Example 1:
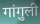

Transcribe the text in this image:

गांगुली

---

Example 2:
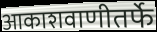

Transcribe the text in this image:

आकाशवाणीतर्फे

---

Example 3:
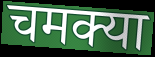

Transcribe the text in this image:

चमक्या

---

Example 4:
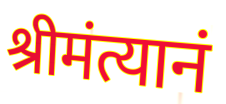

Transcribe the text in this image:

श्रीमंत्यानं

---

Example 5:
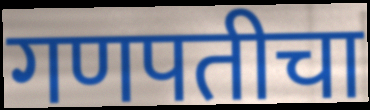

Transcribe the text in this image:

गणपतीचा